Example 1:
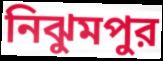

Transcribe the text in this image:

নিঝুমপুর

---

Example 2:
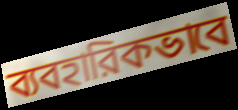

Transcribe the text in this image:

ব্যবহারিকভাবে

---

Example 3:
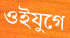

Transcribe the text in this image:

ওইযুগে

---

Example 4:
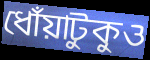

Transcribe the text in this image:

ধোঁয়াটুকুও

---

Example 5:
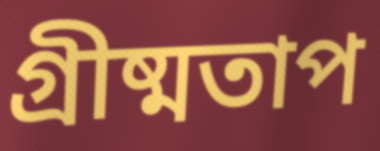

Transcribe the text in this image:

গ্রীষ্মতাপ